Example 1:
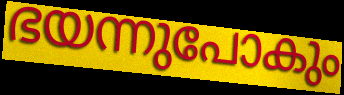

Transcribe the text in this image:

ഭയന്നുപോകും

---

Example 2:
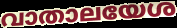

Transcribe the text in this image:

വാതാലയേശ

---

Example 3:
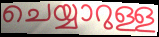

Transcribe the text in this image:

ചെയ്യാറുള്ള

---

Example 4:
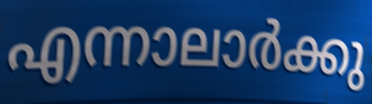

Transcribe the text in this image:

എന്നാലാർക്കു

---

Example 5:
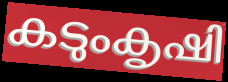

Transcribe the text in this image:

കടുംകൃഷി